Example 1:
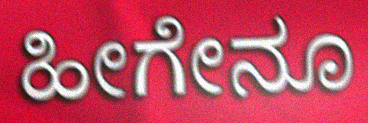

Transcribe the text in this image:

ಹೀಗೇನೂ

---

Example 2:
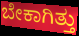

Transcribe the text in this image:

ಬೇಕಾಗಿತ್ತು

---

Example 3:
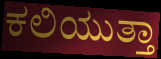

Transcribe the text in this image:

ಕಲಿಯುತ್ತಾ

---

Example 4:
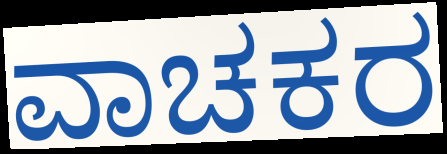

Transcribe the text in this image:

ವಾಚಕರ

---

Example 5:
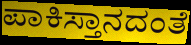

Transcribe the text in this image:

ಪಾಕಿಸ್ತಾನದಂತೆ